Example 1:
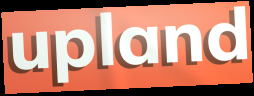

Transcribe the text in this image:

upland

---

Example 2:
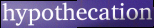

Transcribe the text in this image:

hypothecation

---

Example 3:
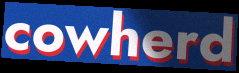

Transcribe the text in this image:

cowherd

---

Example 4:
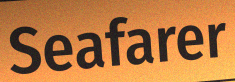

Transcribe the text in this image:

Seafarer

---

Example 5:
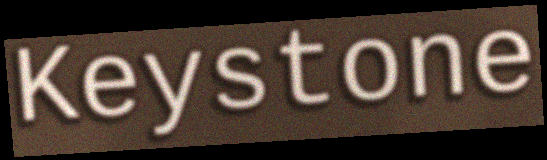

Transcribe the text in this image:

Keystone